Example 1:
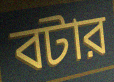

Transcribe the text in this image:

বটার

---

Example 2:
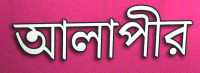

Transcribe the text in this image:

আলাপীর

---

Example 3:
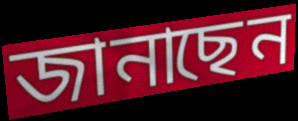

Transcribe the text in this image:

জানাছেন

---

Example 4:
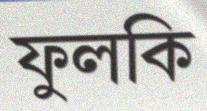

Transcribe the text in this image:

ফুলকি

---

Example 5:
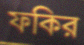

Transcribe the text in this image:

ফকির